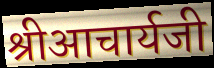
श्रीआचार्यजी